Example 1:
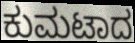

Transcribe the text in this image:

ಕುಮಟಾದ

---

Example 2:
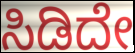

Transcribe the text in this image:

ಸಿಡಿದೇ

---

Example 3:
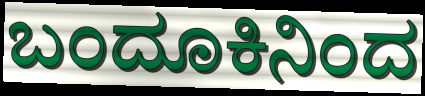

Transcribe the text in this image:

ಬಂದೂಕಿನಿಂದ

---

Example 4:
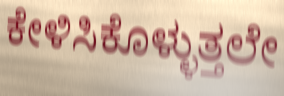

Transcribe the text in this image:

ಕೇಳಿಸಿಕೊಳ್ಳುತ್ತಲೇ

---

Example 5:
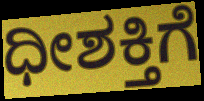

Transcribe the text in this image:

ಧೀಶಕ್ತಿಗೆ